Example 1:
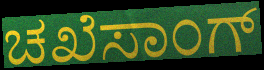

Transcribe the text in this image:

ಚಖೆಸಾಂಗ್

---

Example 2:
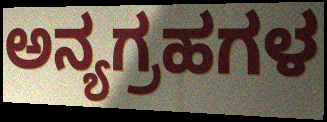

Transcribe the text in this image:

ಅನ್ಯಗ್ರಹಗಳ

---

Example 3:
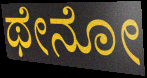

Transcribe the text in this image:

ಥೇನೋ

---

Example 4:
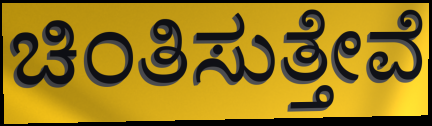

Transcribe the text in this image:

ಚಿಂತಿಸುತ್ತೇವೆ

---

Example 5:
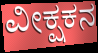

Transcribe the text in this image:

ವೀಕ್ಷಕನ